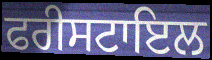
ਫਰੀਸਟਾਇਲ